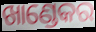
ଖାଣ୍ଡେକର